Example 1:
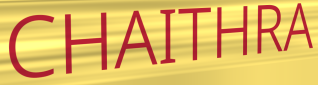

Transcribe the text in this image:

CHAITHRA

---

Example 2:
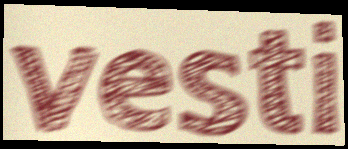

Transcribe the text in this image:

vesti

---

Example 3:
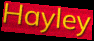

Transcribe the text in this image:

Hayley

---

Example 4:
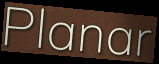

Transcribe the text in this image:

Planar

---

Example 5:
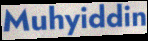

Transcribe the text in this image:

Muhyiddin